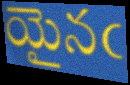
యైనఁ